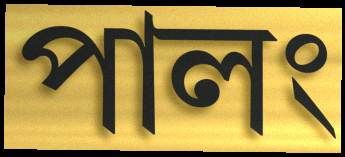
পালং